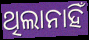
ଥିଲାନାହିଁ